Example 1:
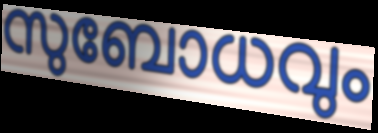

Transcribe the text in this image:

സുബോധവും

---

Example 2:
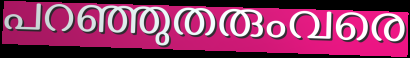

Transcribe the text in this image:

പറഞ്ഞുതരുംവരെ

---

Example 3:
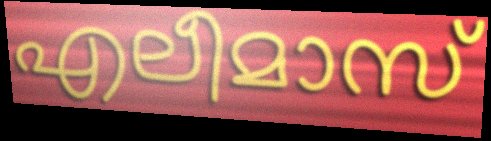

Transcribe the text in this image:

എലീമാസ്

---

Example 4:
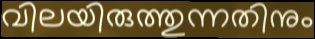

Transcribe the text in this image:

വിലയിരുത്തുന്നതിനും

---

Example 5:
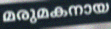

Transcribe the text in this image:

മരുമകനായ